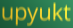
upyukt